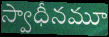
స్వాధీనమూ